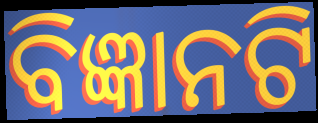
ବିଜ୍ଞାନଟି